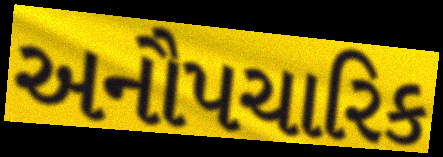
અનૌપચારિક